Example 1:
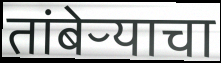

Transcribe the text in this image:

तांबेऱ्याचा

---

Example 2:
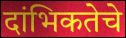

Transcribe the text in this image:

दांभिकतेचे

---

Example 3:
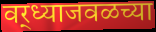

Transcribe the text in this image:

वर्ध्याजवळच्या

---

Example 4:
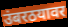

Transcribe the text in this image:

उंबरठयावर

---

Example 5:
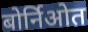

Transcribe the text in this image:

बोर्निओत